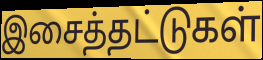
இசைத்தட்டுகள்